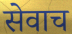
सेवाच